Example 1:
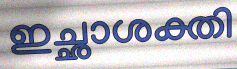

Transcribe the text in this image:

ഇച്ഛാശക്തി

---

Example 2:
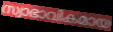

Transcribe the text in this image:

സ്വാഭാവികമായ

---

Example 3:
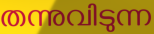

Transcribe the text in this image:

തന്നുവിടുന്ന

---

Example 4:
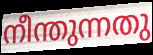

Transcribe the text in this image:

നീന്തുന്നതു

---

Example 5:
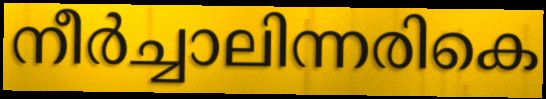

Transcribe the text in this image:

നീർച്ചാലിന്നരികെ